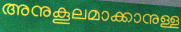
അനുകൂലമാക്കാനുള്ള